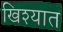
खिश्यात